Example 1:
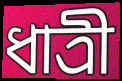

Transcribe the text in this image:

ধাত্ৰী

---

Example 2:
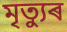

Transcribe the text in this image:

মৃত্যুৰ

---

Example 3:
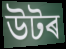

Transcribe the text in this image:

উটৰ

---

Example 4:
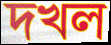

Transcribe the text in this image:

দখল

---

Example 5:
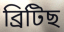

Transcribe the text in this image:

ব্ৰিটিছ